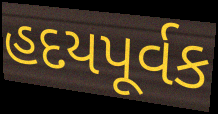
હદયપૂર્વક